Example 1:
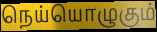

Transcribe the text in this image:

நெய்யொழுகும்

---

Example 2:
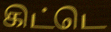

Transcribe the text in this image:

கிட்டெ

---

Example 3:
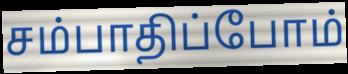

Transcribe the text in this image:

சம்பாதிப்போம்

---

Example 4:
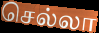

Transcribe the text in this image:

செல்லா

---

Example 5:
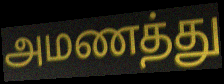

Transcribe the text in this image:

அமணத்து